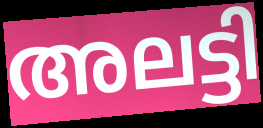
അലട്ടി